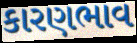
કારણભાવ